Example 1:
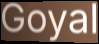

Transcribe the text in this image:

Goyal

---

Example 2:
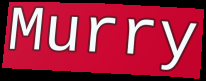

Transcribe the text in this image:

Murry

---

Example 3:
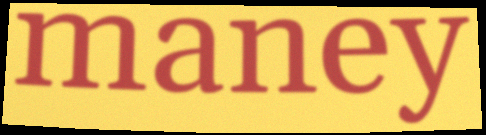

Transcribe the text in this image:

maney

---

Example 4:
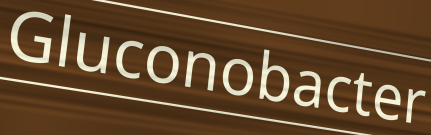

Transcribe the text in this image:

Gluconobacter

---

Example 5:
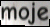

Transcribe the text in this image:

moje